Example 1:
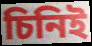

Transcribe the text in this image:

চিনিই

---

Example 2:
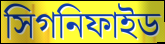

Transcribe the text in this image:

সিগনিফাইড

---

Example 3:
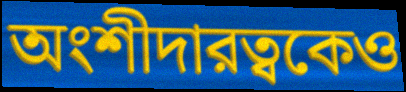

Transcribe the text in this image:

অংশীদারত্বকেও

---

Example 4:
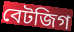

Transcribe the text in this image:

বেটজিগ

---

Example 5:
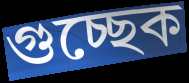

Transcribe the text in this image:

গুচ্ছেক